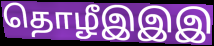
தொழீஇஇஇ